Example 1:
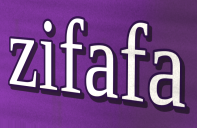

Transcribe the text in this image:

zifafa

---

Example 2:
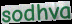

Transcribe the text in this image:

sodhva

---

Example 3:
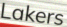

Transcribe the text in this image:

Lakers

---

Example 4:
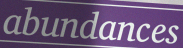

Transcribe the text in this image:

abundances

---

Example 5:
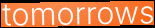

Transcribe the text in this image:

tomorrows